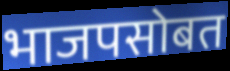
भाजपसोबत